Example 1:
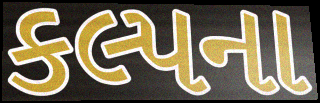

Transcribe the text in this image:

કલ્પના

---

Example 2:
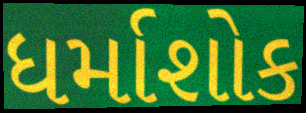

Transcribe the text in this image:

ધર્માશોક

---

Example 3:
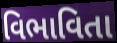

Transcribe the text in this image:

વિભાવિતા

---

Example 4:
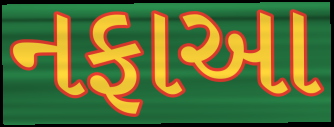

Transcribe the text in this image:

નફાઆ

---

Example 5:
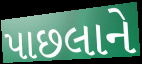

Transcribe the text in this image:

પાછલાને